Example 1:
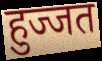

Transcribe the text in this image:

हुज्जत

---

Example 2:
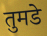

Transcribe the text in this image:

तुमडे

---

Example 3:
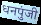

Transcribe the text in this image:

धनपुंजी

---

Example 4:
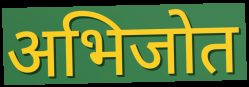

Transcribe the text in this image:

अभिजोत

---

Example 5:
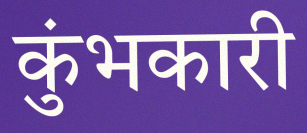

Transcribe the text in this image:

कुंभकारी